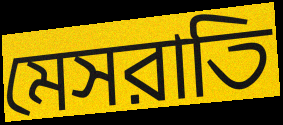
মেসরাতি